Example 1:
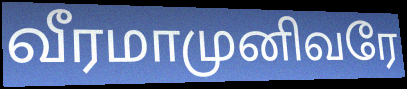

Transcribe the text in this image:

வீரமாமுனிவரே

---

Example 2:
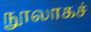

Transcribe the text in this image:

நூலாகச்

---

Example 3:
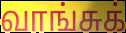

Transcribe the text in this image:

வாங்சுக்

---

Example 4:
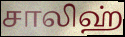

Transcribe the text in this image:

சாலிஹ்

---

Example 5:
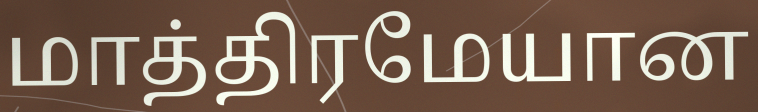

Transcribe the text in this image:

மாத்திரமேயான